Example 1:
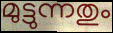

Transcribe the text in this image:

മുട്ടുന്നതും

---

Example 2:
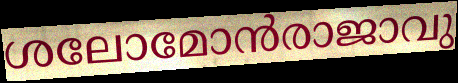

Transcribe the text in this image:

ശലോമോൻരാജാവു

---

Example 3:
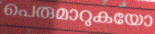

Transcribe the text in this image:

പെരുമാറുകയോ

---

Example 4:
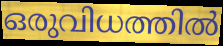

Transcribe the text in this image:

ഒരുവിധത്തിൽ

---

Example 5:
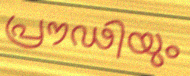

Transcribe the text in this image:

പ്രൗഢിയും